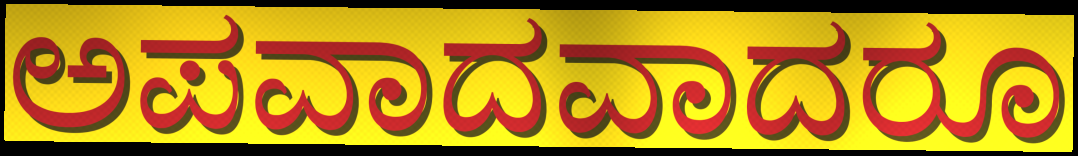
ಅಪವಾದವಾದರೂ